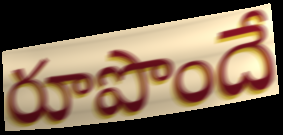
రూపొందే